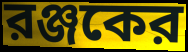
রঞ্জকের